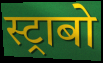
स्ट्राबो